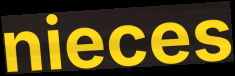
nieces